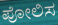
ಪೋಲಿಸ